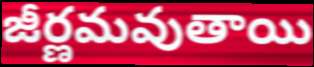
జీర్ణమవుతాయి